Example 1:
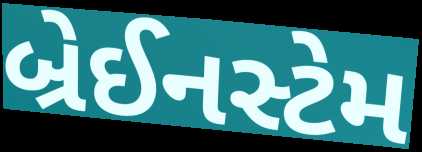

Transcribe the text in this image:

બ્રેઈનસ્ટેમ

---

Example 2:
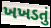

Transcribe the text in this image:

ખખડતું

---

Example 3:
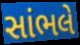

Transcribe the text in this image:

સાંભલે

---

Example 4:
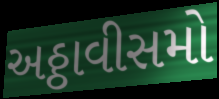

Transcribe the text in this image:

અઠ્ઠાવીસમો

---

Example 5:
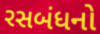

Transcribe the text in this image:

રસબંધનો